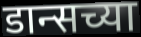
डान्सच्या